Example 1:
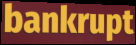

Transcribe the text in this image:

bankrupt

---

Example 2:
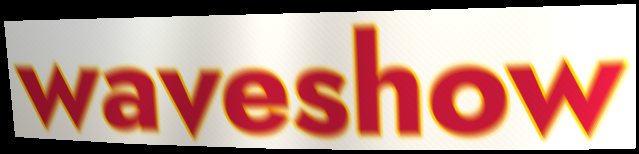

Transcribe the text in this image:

waveshow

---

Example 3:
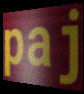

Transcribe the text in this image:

paj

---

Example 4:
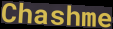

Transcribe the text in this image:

Chashme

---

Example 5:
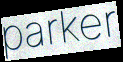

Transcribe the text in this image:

parker